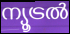
ന്യൂട്രൽ